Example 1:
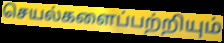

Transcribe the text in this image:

செயல்களைப்பற்றியும்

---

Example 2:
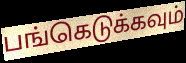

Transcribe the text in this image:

பங்கெடுக்கவும்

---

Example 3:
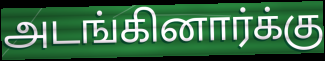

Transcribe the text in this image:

அடங்கினார்க்கு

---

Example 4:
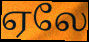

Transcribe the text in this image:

ஏலே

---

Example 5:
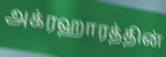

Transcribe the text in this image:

அக்ரஹாரத்தின்